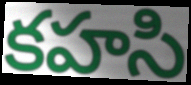
కహసి